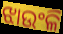
ଝାଉଂଳି